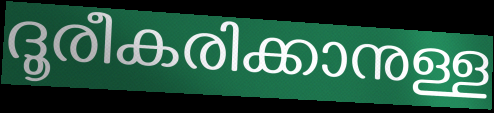
ദൂരീകരിക്കാനുള്ള